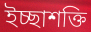
ইচ্ছাশক্তি